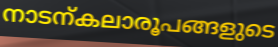
നാടന്കലാരൂപങ്ങളുടെ